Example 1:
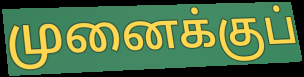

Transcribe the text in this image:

முனைக்குப்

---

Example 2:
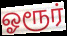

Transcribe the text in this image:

ஓரூர்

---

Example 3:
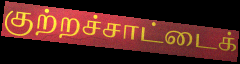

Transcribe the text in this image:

குற்றச்சாட்டைக்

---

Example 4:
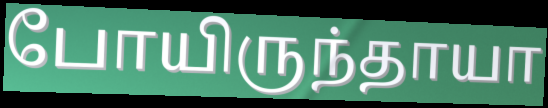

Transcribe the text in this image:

போயிருந்தாயா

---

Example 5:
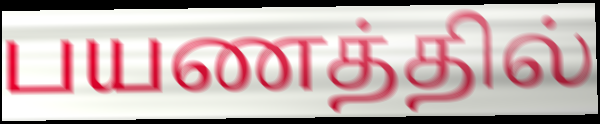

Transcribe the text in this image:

பயணத்தில்